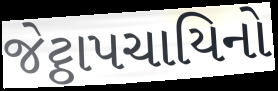
જેટ્ઠાપચાયિનો